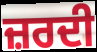
ਜ਼ਰਦੀ